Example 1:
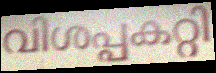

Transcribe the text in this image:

വിശപ്പകറ്റി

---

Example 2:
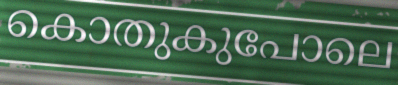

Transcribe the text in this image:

കൊതുകുപോലെ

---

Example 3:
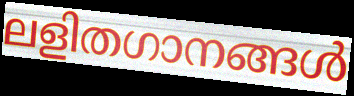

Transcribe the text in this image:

ലളിതഗാനങ്ങൾ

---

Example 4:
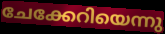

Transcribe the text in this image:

ചേക്കേറിയെന്നു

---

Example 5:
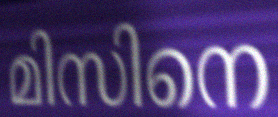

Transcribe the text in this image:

മിസിനെ